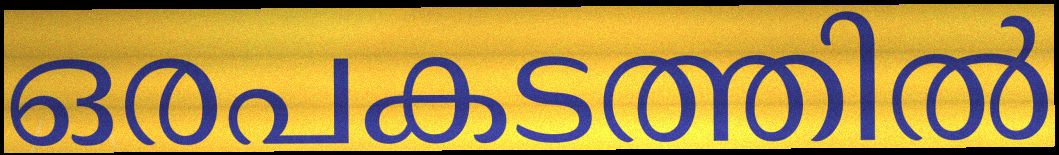
ഒരപകടത്തിൽ